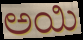
ಅಯಿ